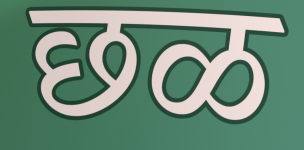
छळ